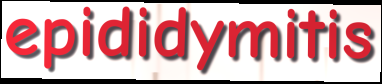
epididymitis